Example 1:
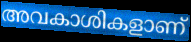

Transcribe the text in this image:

അവകാശികളാണ്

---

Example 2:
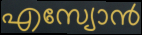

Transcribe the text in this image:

എസ്യോൻ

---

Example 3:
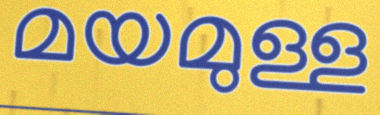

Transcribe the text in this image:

മയമുള്ള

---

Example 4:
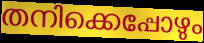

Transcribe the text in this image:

തനിക്കെപ്പോഴും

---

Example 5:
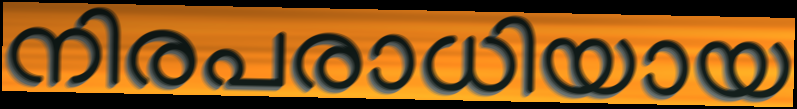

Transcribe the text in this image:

നിരപരാധിയായ